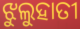
ଝୁଲୁହାତୀ